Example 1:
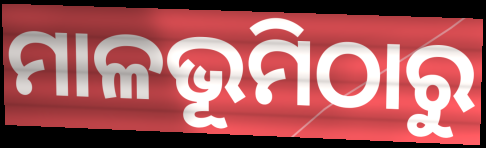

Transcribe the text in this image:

ମାଳଭୂମିଠାରୁ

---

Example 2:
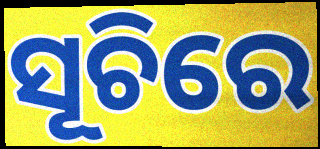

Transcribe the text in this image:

ସୂଚିରେ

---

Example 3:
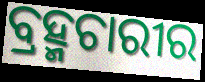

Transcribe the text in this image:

ବ୍ରହ୍ମଚାରୀର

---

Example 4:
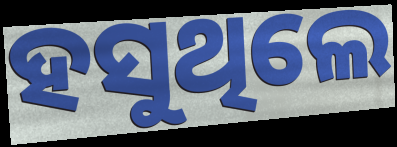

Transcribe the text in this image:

ହସୁଥିଲେ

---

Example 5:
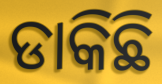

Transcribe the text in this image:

ଡାକିଛି